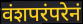
वंशपरंपरेनं